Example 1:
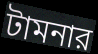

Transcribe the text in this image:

টামনার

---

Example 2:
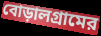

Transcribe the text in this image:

বোড়ালগ্রামের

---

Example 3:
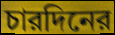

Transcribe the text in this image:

চারদিনের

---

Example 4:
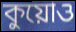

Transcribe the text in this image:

কুয়োও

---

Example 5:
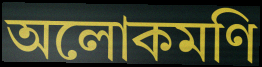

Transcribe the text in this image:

অলোকমণি